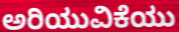
ಅರಿಯುವಿಕೆಯು